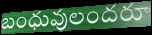
బంధువులందరూ